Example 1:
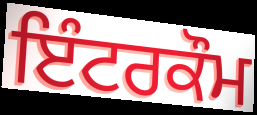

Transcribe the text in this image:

ਇੰਟਰਕੌਮ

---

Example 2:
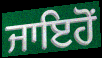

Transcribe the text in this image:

ਜਾਇਹੋਂ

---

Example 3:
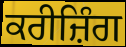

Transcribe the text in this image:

ਕਰੀਜ਼ਿੰਗ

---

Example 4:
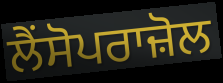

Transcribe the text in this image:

ਲੈਂਸੋਪਰਾਜ਼ੋਲ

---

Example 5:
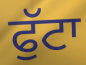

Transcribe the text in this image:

ਫੁੱਟਾ